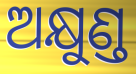
ଅକ୍ଷୁଣ୍ଡ